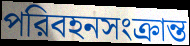
পরিবহনসংক্রান্ত